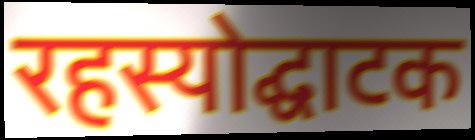
रहस्योद्घाटक